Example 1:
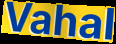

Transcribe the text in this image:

Vahal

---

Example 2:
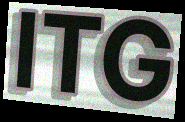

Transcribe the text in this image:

ITG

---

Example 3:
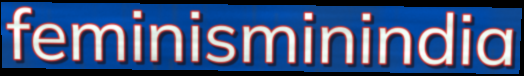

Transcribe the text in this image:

feminisminindia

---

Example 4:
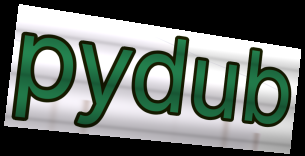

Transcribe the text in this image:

pydub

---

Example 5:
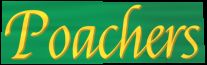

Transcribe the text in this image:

Poachers